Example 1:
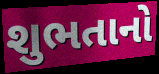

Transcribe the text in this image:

શુભતાનો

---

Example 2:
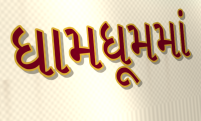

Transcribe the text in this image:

ધામધૂમમાં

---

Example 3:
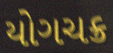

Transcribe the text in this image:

યોગચક્ર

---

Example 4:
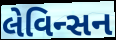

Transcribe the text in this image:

લેવિન્સન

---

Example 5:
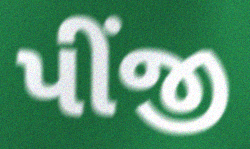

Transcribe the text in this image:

પીંજી